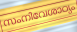
സംനിവേശാഠ്യം